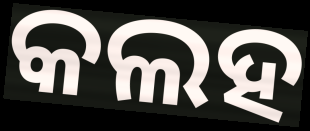
କଲହ